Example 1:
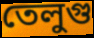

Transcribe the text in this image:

তেলুগু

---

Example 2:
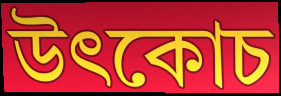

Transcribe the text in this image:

উৎকোচ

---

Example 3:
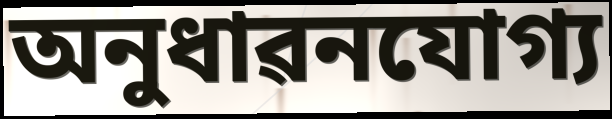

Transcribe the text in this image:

অনুধাৱনযোগ্য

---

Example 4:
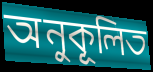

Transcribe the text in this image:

অনুকূলিত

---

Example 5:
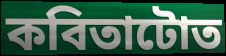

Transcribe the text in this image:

কবিতাটোত